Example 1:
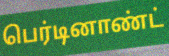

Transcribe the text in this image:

பெர்டினாண்ட்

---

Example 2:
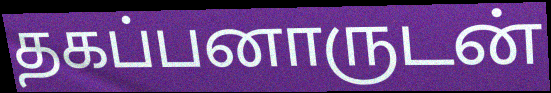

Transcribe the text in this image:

தகப்பனாருடன்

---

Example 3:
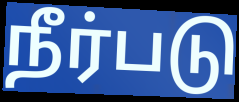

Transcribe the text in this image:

நீர்படு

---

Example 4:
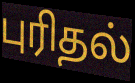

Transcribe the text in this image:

புரிதல்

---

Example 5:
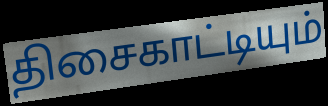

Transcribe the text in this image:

திசைகாட்டியும்